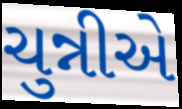
ચુન્નીએ